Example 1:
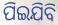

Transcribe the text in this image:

ପିଇଯିବି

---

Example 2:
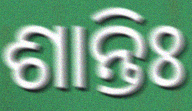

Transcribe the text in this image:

ଶାନ୍ତିଃ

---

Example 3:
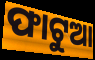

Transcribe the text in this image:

ଫାଟୁଆ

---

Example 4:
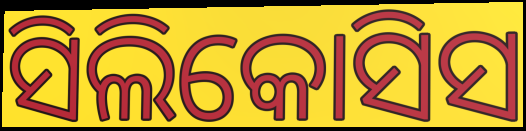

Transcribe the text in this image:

ସିଲିକୋସିସ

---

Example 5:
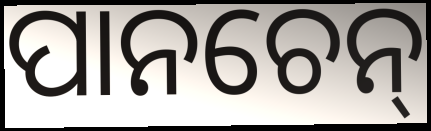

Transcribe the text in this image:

ପାନଚେନ୍